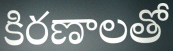
కిరణాలతో